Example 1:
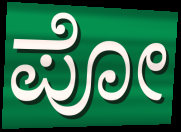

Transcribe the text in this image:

ಪೋ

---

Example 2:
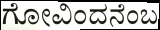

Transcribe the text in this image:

ಗೋವಿಂದನೆಂಬ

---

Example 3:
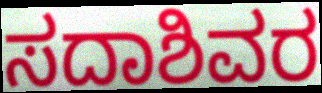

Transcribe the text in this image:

ಸದಾಶಿವರ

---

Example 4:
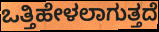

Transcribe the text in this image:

ಒತ್ತಿಹೇಳಲಾಗುತ್ತದೆ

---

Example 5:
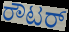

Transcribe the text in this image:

ರೌಟರ್